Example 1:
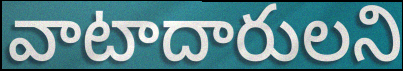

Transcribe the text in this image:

వాటాదారులని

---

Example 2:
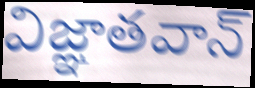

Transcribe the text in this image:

విజ్ఞాతవాన్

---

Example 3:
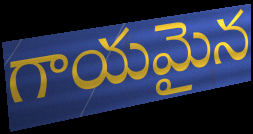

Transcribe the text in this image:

గాయమైన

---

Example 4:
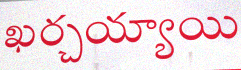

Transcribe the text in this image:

ఖర్చయ్యాయి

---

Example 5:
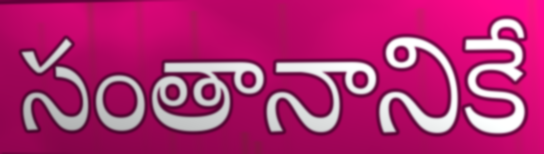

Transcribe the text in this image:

సంతానానికే